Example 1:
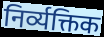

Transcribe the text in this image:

निर्व्यक्तिक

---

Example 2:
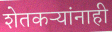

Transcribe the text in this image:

शेतकऱ्यांनाही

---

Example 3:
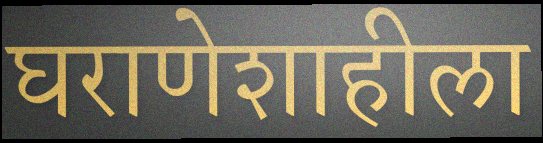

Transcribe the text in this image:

घराणेशाहीला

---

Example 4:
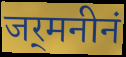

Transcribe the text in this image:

जर्मनीनं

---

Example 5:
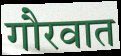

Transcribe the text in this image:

गौरवात